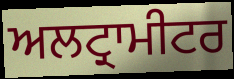
ਅਲਟ੍ਰਾਮੀਟਰ